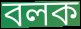
বলক